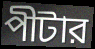
পীটার